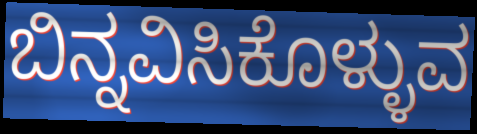
ಬಿನ್ನವಿಸಿಕೊಳ್ಳುವ